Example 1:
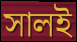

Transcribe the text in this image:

সালই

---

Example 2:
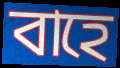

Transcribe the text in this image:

বাহে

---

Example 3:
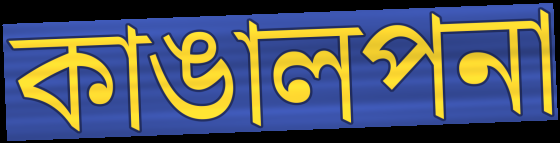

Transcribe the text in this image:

কাঙালপনা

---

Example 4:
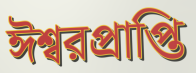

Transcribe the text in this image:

ঈশ্বরপ্রাপ্তি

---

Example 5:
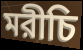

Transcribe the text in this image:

মরীচি